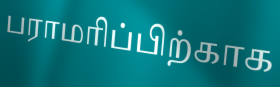
பராமரிப்பிற்காக